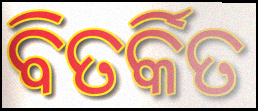
ବିତର୍କିତ